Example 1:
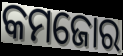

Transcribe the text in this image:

କମଜୋର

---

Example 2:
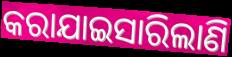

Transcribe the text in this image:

କରାଯାଇସାରିଲାଣି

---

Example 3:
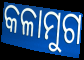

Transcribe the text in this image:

କଳାମୁଗ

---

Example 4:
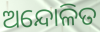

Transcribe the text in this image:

ଅନ୍ଦୋଳିତ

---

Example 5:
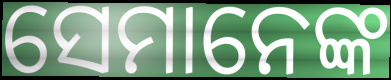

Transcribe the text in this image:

ସେମାନେଙ୍କ